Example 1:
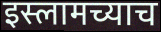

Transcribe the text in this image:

इस्लामच्याच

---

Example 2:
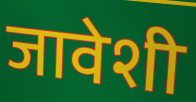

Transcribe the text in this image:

जावेशी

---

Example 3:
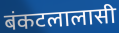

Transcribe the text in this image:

बंकटलालासी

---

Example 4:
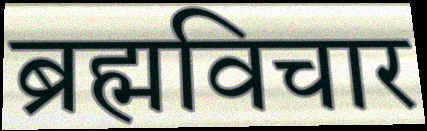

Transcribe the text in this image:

ब्रह्मविचार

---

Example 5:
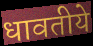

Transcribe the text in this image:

धावतीये